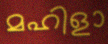
മഹിളാ